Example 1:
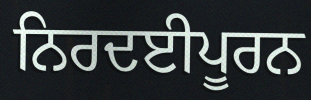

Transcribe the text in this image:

ਨਿਰਦਈਪੂਰਨ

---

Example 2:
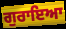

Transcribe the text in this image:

ਗੁਰਾਇਆ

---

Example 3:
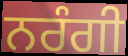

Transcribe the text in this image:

ਨਰੰਗੀ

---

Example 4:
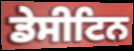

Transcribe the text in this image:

ਡੇਸੀਟਿਨ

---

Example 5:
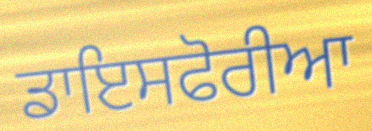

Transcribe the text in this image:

ਡਾਇਸਫੋਰੀਆ